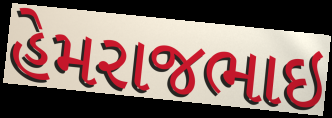
હેમરાજભાઇ